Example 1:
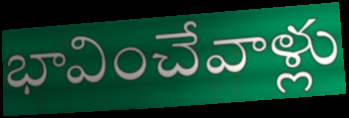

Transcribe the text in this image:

భావించేవాళ్లు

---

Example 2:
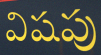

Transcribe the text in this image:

విషపు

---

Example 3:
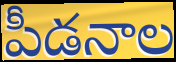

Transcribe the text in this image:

పీడనాల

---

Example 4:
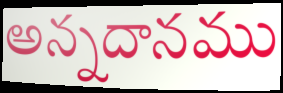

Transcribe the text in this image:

అన్నదానము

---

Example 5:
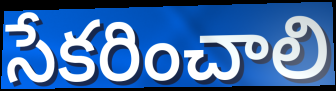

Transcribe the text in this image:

సేకరించాలి